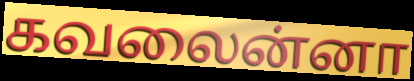
கவலைன்னா